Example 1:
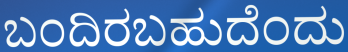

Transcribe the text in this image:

ಬಂದಿರಬಹುದೆಂದು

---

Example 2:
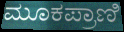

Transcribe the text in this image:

ಮೂಕಪ್ರಾಣಿ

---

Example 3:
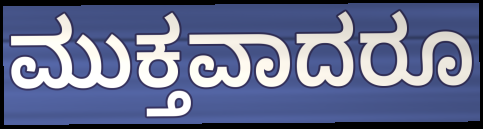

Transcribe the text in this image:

ಮುಕ್ತವಾದರೂ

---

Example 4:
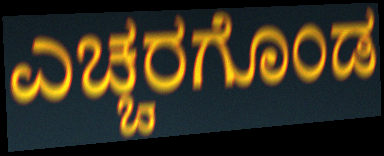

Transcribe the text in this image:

ಎಚ್ಚರಗೊಂಡ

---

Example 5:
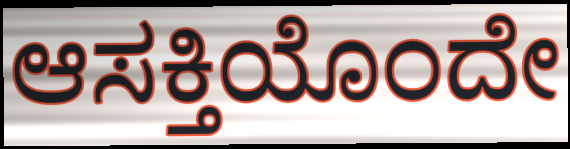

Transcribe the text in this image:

ಆಸಕ್ತಿಯೊಂದೇ